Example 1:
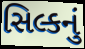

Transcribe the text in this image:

સિલ્કનું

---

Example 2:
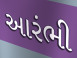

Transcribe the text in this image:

આરંભી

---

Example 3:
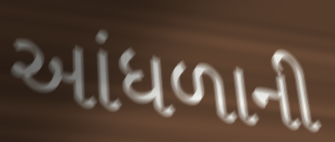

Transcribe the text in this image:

આંધળાની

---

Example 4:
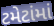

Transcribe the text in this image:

ટમેટાંમાં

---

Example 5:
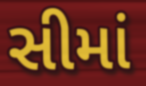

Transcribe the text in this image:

સીમાં